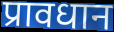
प्रावधान